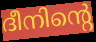
ദീനിന്റെ